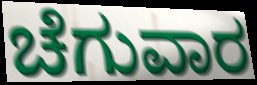
ಚೆಗುವಾರ